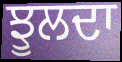
ਝੂਲਦਾ